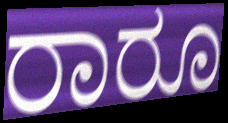
ರಾರೂ